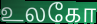
உலகோ